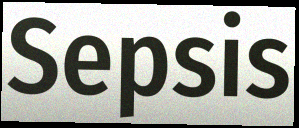
Sepsis